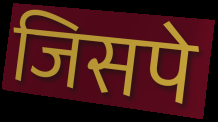
जिसपे